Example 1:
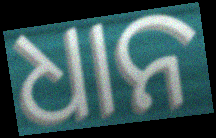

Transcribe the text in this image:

ଧାନ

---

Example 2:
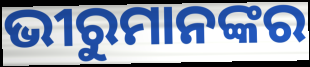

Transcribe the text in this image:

ଭୀରୁମାନଙ୍କର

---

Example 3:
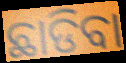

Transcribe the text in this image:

ଛାଡିବା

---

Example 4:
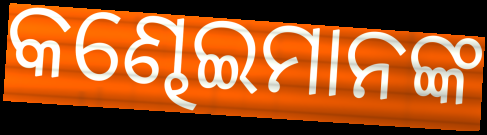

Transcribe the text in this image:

କଣ୍ଢେଇମାନଙ୍କ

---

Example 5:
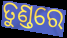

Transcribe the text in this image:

ତୁଣ୍ଡରେ